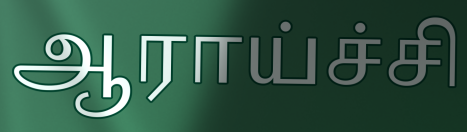
ஆராய்ச்சி